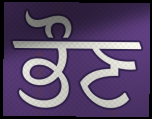
ਭੌਣ